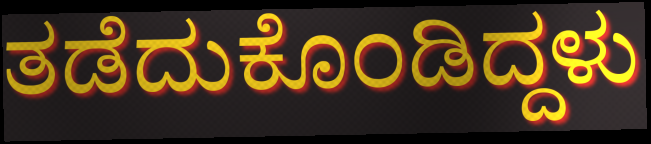
ತಡೆದುಕೊಂಡಿದ್ದಳು